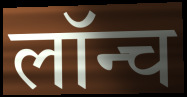
लॉन्‍च